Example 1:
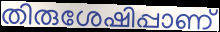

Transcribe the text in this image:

തിരുശേഷിപ്പാണ്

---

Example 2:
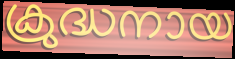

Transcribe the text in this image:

ക്രുദ്ധനായ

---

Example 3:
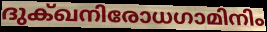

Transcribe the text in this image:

ദുക്ഖനിരോധഗാമിനിം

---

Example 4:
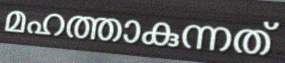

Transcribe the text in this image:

മഹത്താകുന്നത്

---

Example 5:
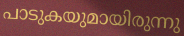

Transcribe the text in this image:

പാടുകയുമായിരുന്നു